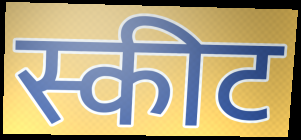
स्कीट